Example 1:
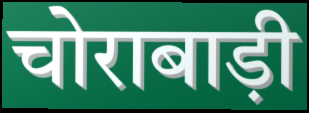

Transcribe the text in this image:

चोराबाड़ी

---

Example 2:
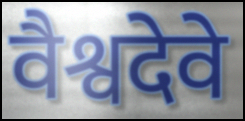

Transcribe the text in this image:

वैश्वदेवे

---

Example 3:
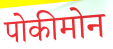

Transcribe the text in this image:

पोकीमोन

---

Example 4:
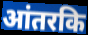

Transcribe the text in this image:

आंतरकि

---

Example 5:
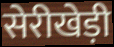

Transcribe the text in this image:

सेरीखेड़ी